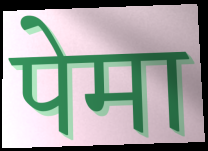
पेमा